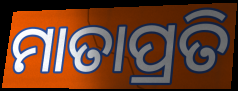
ମାତାପ୍ରତି